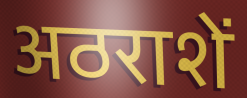
अठराशें